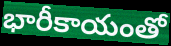
భారీకాయంతో